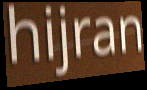
hijran